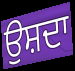
ਉਸ਼ਦਾ